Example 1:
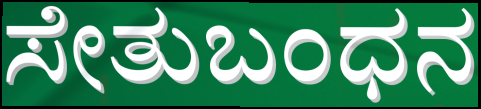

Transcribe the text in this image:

ಸೇತುಬಂಧನ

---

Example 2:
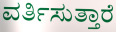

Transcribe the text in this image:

ವರ್ತಿಸುತ್ತಾರೆ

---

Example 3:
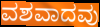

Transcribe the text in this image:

ವಶವಾದವು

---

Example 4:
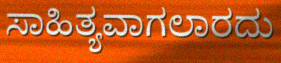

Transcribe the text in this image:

ಸಾಹಿತ್ಯವಾಗಲಾರದು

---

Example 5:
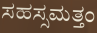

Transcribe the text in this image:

ಸಹಸ್ಸಮತ್ತಂ